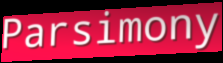
Parsimony